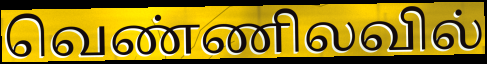
வெண்ணிலவில்